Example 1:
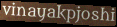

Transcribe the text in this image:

vinayakpjoshi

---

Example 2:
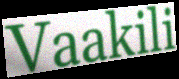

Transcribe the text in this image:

Vaakili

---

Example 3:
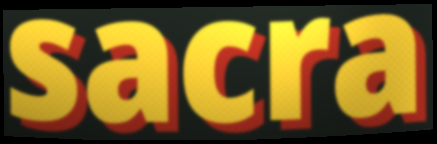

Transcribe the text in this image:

sacra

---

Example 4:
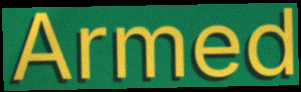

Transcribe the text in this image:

Armed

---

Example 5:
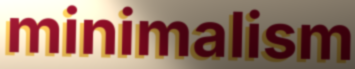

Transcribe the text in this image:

minimalism